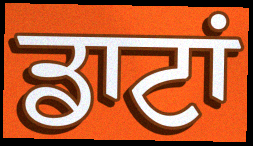
ਡਾਟਾਂ